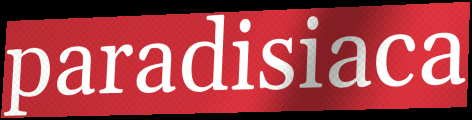
paradisiaca